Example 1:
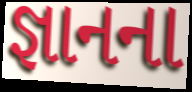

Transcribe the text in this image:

જ્ઞાનના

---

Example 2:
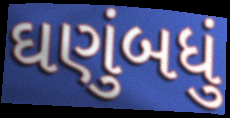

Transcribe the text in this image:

ઘણુંબધું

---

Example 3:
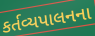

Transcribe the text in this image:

કર્તવ્યપાલનના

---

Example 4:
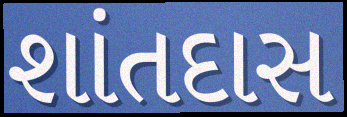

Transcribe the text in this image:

શાંતદાસ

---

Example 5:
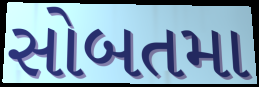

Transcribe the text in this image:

સોબતમા